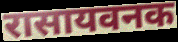
रासायवनक